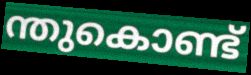
ന്തുകൊണ്ട്